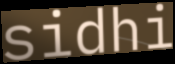
sidhi